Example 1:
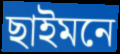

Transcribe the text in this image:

ছাইমনে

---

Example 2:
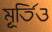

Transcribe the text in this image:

মূৰ্তিও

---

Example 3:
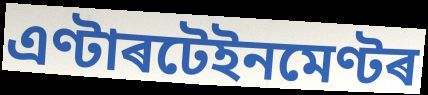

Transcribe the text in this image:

এণ্টাৰটেইনমেণ্টৰ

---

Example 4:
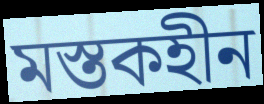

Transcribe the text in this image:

মস্তকহীন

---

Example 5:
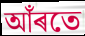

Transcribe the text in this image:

আঁৰতে